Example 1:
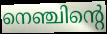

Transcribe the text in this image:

നെഞ്ചിന്റെ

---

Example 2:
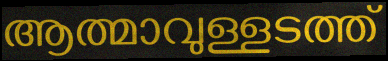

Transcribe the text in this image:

ആത്മാവുള്ളടത്ത്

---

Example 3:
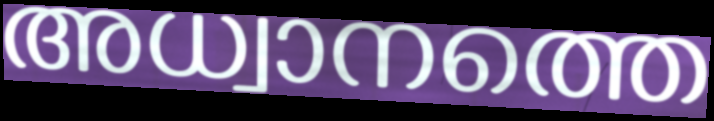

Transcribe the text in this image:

അധ്വാനത്തെ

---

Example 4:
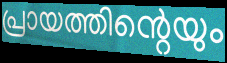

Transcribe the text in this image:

പ്രായത്തിന്റെയും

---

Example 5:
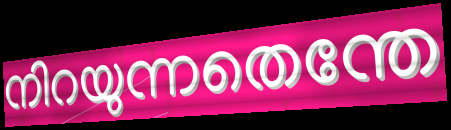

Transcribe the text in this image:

നിറയുന്നതെന്തേ